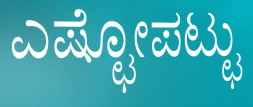
ಎಷ್ಟೋಪಟ್ಟು